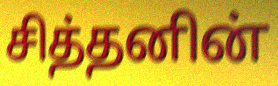
சித்தனின்